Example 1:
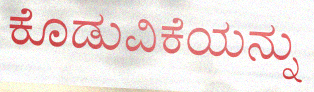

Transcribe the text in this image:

ಕೊಡುವಿಕೆಯನ್ನು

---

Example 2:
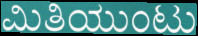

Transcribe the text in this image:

ಮಿತಿಯುಂಟು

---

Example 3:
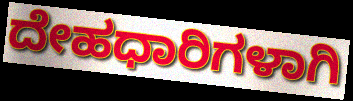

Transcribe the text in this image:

ದೇಹಧಾರಿಗಳಾಗಿ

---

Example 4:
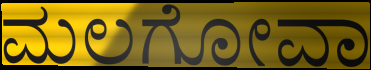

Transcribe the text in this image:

ಮಲಗೋವಾ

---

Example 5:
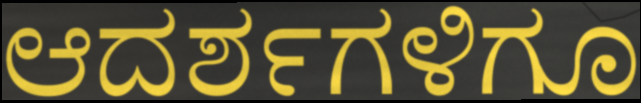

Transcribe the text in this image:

ಆದರ್ಶಗಳಿಗೂ